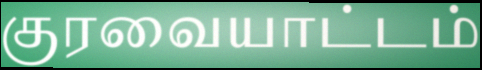
குரவையாட்டம்